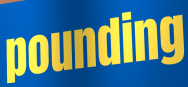
pounding